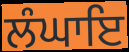
ਲੰਘਾਇ